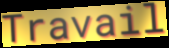
Travail